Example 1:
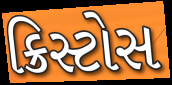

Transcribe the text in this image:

ક્રિસ્ટોસ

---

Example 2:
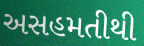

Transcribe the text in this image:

અસહમતીથી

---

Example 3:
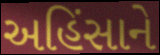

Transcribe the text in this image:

અહિંસાને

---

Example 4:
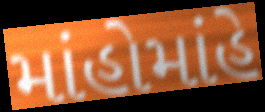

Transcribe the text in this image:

માંહોમાંહે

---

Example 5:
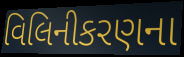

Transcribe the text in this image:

વિલિનીકરણના